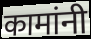
कामांनी